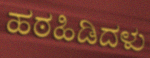
ಹಠಹಿಡಿದಳು